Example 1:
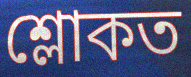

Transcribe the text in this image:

শ্লোকত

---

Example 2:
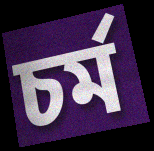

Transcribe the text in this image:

চৰ্ম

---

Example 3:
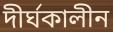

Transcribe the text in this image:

দীৰ্ঘকালীন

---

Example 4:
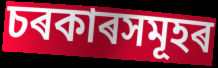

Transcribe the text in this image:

চৰকাৰসমূহৰ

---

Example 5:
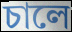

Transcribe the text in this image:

চালে